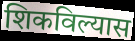
शिकविल्यास